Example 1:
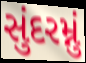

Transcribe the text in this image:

સુંદરમ્નું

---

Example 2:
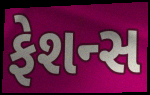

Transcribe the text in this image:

ફેશન્સ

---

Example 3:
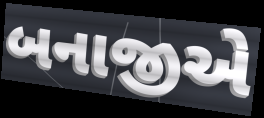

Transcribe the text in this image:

બનાજીએ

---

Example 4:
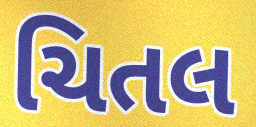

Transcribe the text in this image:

ચિતલ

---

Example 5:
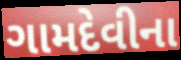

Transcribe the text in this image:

ગામદેવીના